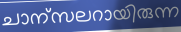
ചാന്സലറായിരുന്ന